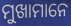
ମୁଖାମାନେ